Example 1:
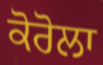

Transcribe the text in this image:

ਕੋਰੋਲਾ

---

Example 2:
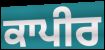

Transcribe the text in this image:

ਕਾਪੀਰ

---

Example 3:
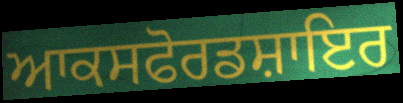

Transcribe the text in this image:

ਆਕਸਫੋਰਡਸ਼ਾਇਰ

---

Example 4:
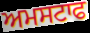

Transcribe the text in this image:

ਅਮਸਟਾਫ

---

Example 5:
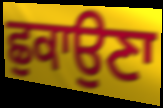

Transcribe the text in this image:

ਛੁਕਾਉਣਾ